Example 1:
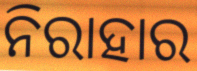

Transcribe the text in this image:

ନିରାହାର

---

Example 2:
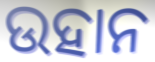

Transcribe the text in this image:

ଉହାନ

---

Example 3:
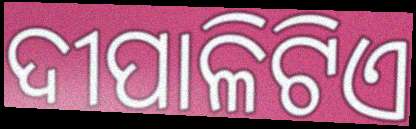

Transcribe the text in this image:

ଦୀପାଳିଟିଏ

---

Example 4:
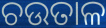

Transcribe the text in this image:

ଚଉତାଳ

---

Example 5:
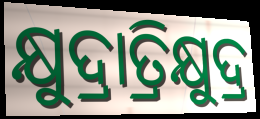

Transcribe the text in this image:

କ୍ଷୁଦ୍ରାତ୍ରିକ୍ଷୁଦ୍ର